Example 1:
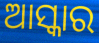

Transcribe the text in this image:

ଆସ୍କାର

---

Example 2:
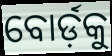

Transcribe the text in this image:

ବୋର୍ଡ଼କୁ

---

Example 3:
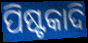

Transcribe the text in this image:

ପିଷ୍ଟକାଦି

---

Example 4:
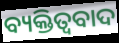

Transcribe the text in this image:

ବ୍ୟକ୍ତିତ୍ବବାଦ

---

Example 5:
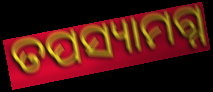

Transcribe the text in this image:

ତପସ୍ୟାମଗ୍ନ